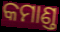
କମାଣ୍ଡ